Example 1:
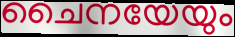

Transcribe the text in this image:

ചൈനയേയും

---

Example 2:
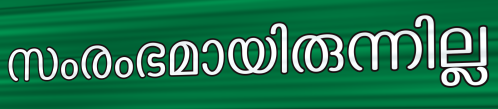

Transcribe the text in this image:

സംരംഭമായിരുന്നില്ല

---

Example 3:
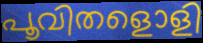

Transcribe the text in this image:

പൂവിതളൊളി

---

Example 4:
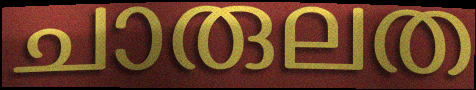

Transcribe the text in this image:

ചാരുലത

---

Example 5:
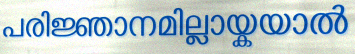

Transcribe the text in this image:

പരിജ്ഞാനമില്ലായ്കയാൽ